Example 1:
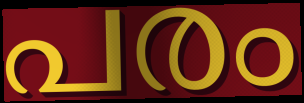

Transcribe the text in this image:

പരം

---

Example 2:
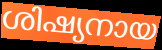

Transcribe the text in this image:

ശിഷ്യനായ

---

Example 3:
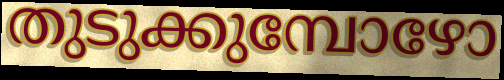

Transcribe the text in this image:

തുടുക്കുമ്പോഴോ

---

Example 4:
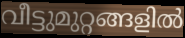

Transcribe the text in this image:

വീട്ടുമുറ്റങ്ങളിൽ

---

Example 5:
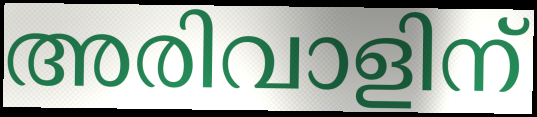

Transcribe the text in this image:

അരിവാളിന്